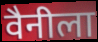
वैनीला